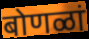
बोणळां